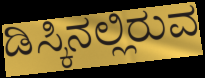
ಡಿಸ್ಕಿನಲ್ಲಿರುವ